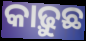
କାଢ଼ୁଛ